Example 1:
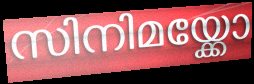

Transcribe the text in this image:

സിനിമയ്ക്കോ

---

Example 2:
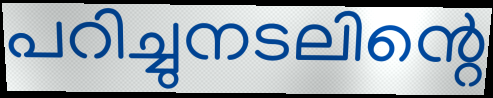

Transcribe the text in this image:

പറിച്ചുനടലിന്റെ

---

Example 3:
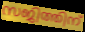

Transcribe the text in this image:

സജിത്തിന്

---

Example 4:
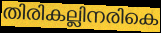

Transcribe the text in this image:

തിരികല്ലിനരികെ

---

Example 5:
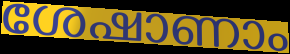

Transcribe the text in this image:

ശേഷാണാം